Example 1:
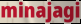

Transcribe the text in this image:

minajagi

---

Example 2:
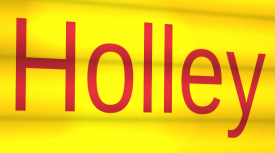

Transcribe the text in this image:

Holley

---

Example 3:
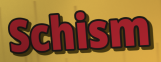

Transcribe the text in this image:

Schism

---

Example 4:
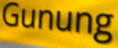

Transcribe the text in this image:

Gunung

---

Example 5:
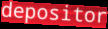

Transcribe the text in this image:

depositor